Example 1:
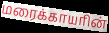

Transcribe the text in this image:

மரைக்காயரின்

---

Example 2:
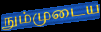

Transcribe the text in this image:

நும்முடைய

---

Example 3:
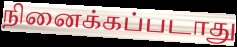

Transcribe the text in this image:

நினைக்கப்படாது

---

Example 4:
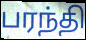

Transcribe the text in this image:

பரந்தி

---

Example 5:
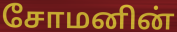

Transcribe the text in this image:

சோமனின்